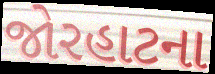
જોરહાટના